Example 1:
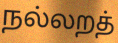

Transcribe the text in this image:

நல்லறத்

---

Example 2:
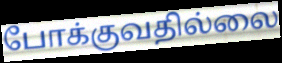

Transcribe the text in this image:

போக்குவதில்லை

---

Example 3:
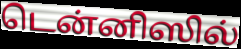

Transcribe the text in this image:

டென்னிஸில்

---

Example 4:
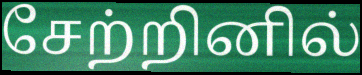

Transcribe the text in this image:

சேற்றினில்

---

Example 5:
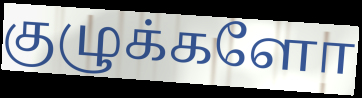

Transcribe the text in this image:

குழுக்களோ